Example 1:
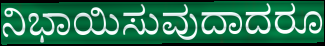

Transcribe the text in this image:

ನಿಭಾಯಿಸುವುದಾದರೂ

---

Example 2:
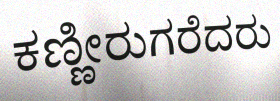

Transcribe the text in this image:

ಕಣ್ಣೀರುಗರೆದರು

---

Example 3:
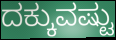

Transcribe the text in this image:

ದಕ್ಕುವಷ್ಟು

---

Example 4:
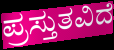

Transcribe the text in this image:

ಪ್ರಸ್ತುತವಿದೆ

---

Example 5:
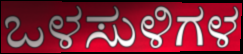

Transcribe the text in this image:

ಒಳಸುಳಿಗಳ